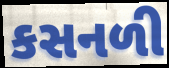
કસનળી